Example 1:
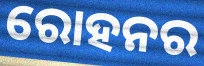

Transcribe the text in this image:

ରୋହନର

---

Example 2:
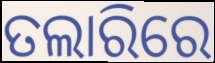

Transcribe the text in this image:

ତଲାରିରେ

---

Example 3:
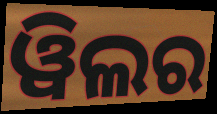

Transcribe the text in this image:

ୱିଲର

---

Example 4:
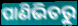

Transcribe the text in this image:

ପାଣିଭିତରୁ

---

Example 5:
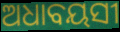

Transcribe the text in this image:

ଅଧାବୟସୀ